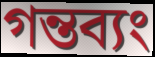
গন্তব্যং